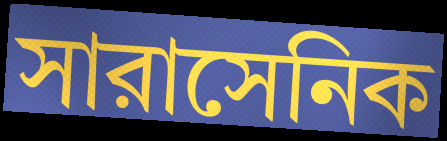
সারাসেনিক